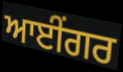
ਆਈਂਗਰ